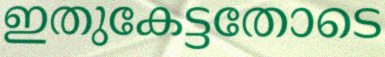
ഇതുകേട്ടതോടെ